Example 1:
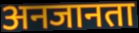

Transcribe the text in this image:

अनजानता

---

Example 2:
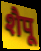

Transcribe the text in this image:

शैपू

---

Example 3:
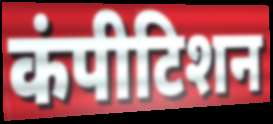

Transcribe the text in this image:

कंपीटिशन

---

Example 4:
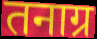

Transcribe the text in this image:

तनाग्र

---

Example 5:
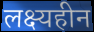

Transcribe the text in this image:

लक्ष्यहीन